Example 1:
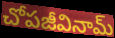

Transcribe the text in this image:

చోపజీవినామ్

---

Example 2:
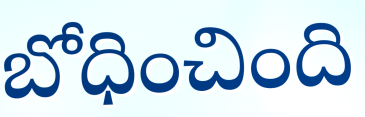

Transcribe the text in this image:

బోధించింది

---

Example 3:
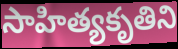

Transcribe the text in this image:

సాహిత్యకృతిని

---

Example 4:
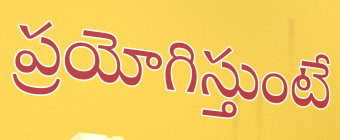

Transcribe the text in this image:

ప్రయోగిస్తుంటే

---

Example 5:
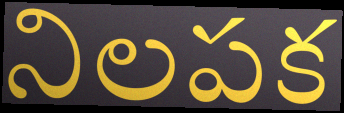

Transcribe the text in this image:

నిలపక